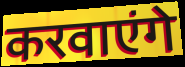
करवाएंगे